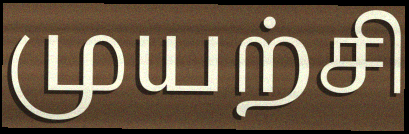
முயற்சி